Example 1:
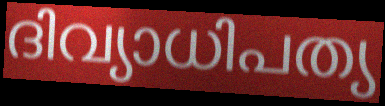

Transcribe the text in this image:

ദിവ്യാധിപത്യ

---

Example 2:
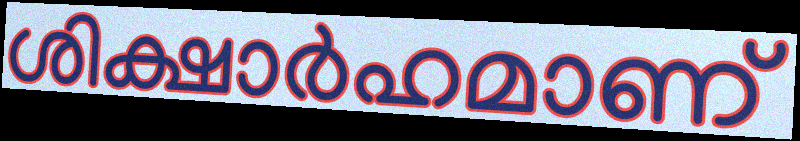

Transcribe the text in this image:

ശിക്ഷാർഹമാണ്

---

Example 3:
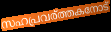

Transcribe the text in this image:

സഹപ്രവര്ത്തകനോട്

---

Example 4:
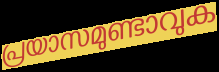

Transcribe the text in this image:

പ്രയാസമുണ്ടാവുക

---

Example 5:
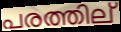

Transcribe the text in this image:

പരത്തില്